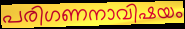
പരിഗണനാവിഷയം